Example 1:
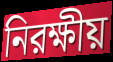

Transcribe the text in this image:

নিরক্ষীয়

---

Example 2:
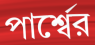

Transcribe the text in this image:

পার্শ্বের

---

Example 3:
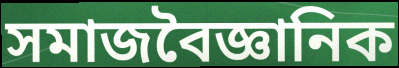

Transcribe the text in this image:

সমাজবৈজ্ঞানিক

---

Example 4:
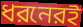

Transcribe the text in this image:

ধরনেরই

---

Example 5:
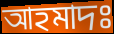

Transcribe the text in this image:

আহমাদঃ